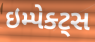
ઇમ્પેક્ટ્સ